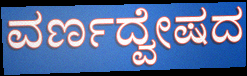
ವರ್ಣದ್ವೇಷದ